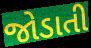
જોડાતી